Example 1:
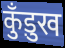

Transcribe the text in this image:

कुँड़ुख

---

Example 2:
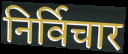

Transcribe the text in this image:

निर्विचार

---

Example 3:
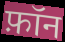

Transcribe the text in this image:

फ़ॉन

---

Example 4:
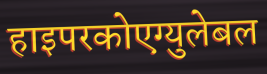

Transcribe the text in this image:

हाइपरकोएग्युलेबल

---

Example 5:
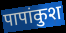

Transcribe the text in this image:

पापांकुश